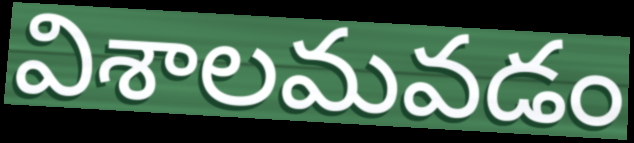
విశాలమవడం